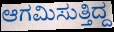
ಆಗಮಿಸುತ್ತಿದ್ದ